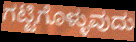
ಗಟ್ಟಿಗೊಳ್ಳುವುದು